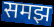
समझ